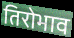
तिरोभाव